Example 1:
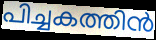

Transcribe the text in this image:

പിച്ചകത്തിൻ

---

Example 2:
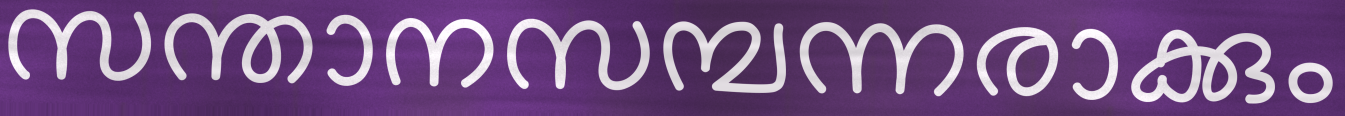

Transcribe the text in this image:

സന്താനസമ്പന്നരാക്കും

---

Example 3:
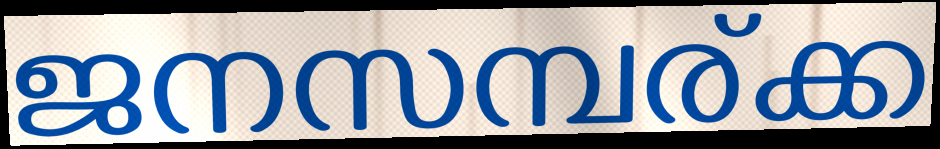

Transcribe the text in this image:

ജനസമ്പര്ക്ക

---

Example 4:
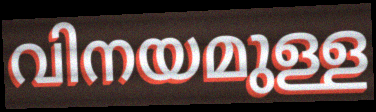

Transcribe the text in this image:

വിനയമുള്ള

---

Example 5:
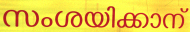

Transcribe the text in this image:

സംശയിക്കാന്